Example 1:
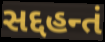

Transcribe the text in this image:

સદ્દહન્તં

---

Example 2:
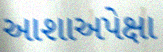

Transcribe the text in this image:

આશાઅપેક્ષા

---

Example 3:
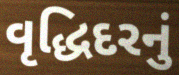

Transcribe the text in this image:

વૃદ્ધિદરનું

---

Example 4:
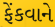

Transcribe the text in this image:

ફેંકવાને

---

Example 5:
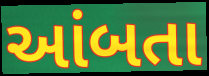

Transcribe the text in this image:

આંબતા